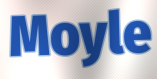
Moyle